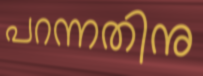
പറന്നതിനു